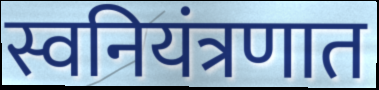
स्वनियंत्रणात